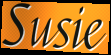
Susie